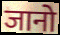
जानो